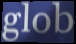
glob